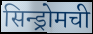
सिन्ड्रोमची